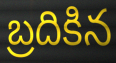
బ్రదికిన